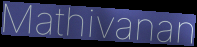
Mathivanan